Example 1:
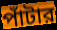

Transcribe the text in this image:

পাঁটার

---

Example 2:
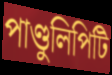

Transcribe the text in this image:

পাণ্ডুলিপিটি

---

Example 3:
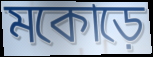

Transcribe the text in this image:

মকোড়ে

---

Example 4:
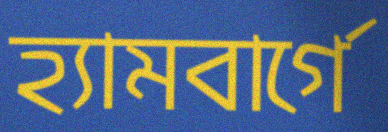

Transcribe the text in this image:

হ্যামবার্গে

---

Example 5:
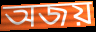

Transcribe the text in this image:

অজয়